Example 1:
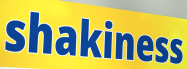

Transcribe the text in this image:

shakiness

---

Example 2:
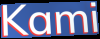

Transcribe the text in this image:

Kami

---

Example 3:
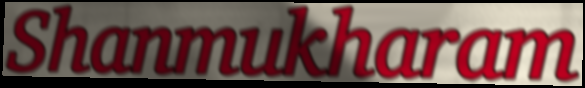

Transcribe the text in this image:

Shanmukharam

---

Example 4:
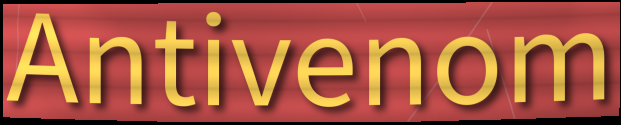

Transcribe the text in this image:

Antivenom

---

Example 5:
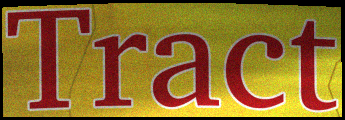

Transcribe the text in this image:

Tract